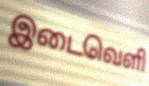
இடைவெளி